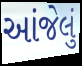
આંજેલું